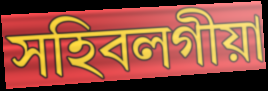
সহিবলগীয়া